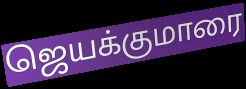
ஜெயக்குமாரை